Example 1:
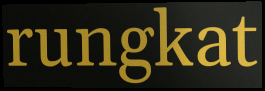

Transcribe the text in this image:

rungkat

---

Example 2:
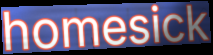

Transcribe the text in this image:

homesick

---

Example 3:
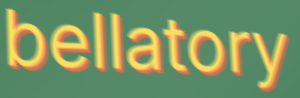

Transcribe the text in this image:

bellatory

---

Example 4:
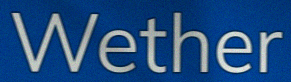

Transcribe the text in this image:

Wether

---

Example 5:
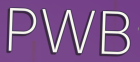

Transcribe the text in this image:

PWB